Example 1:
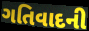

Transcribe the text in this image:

ગતિવાદની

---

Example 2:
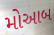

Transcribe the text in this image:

મોઆબ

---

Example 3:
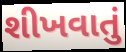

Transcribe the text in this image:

શીખવાતું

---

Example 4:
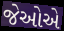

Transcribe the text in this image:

જેઓએ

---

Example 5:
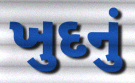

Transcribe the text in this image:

ખુદનું